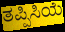
ತಪ್ಪಿಸಿಯೆ